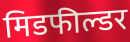
मिडफील्डर